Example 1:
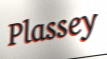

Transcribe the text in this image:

Plassey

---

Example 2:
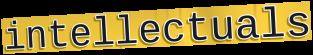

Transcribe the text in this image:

intellectuals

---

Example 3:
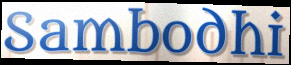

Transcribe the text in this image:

Sambodhi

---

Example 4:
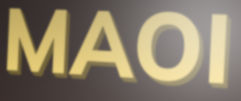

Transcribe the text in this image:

MAOI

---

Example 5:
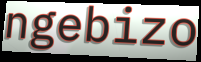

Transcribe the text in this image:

ngebizo